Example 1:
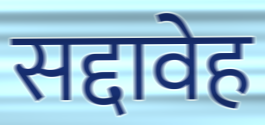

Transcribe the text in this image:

सद्दावेह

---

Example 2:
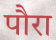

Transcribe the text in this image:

पौरा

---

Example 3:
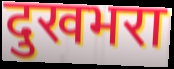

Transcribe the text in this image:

दुखभरा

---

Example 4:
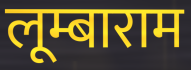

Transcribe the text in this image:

लूम्बाराम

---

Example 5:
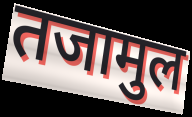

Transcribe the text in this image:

तजामुल